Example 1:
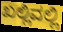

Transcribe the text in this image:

ಖಲ್ಲಿವಲ್ಲಿ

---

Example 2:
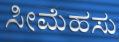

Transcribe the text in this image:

ಸೀಮೆಹಸು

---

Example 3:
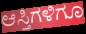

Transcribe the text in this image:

ಆಸ್ತಿಗಳಿಗೂ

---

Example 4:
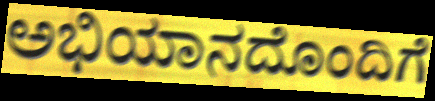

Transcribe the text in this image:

ಅಭಿಯಾನದೊಂದಿಗೆ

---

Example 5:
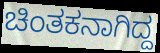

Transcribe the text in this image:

ಚಿಂತಕನಾಗಿದ್ದ